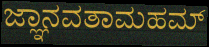
ಜ್ಞಾನವತಾಮಹಮ್